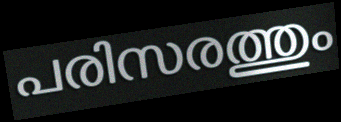
പരിസരത്തും